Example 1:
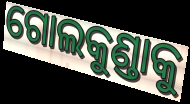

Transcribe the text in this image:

ଗୋଲକୁଣ୍ଡାକୁ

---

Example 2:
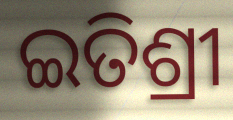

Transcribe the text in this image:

ଇତିଶ୍ରୀ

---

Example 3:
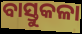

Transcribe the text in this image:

ବାସ୍ତୁକଳା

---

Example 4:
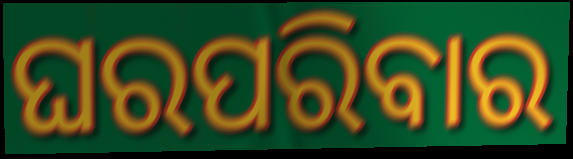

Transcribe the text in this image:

ଘରପରିବାର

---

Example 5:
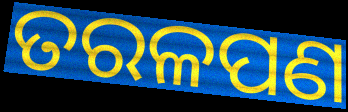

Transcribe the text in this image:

ତରଳପଣ